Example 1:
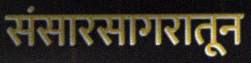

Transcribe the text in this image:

संसारसागरातून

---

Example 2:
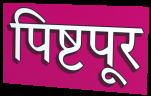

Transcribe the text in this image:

पिष्टपूर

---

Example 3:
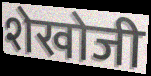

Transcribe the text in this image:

शेखोजी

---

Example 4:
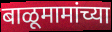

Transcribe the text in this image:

बाळूमामांच्या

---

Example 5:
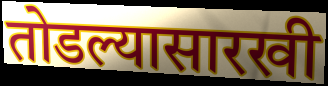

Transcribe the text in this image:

तोडल्यासारखी